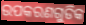
ଉପକରଣଗୁଡିକ